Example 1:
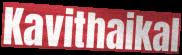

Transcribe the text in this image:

Kavithaikal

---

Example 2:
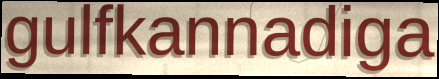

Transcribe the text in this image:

gulfkannadiga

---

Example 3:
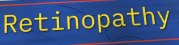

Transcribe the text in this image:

Retinopathy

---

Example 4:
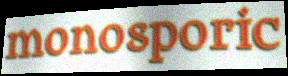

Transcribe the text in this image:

monosporic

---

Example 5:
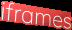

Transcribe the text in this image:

iframes